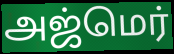
அஜ்மெர்